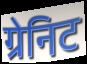
ग्रेनिट